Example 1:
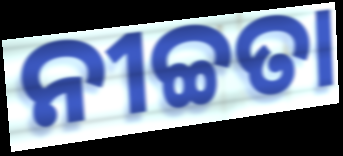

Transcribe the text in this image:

ନୀଚ୍ଚତା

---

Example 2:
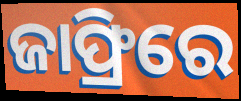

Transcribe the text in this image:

ଜାଫ୍ରିରେ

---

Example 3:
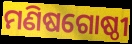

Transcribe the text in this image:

ମଣିଷଗୋଷ୍ଠୀ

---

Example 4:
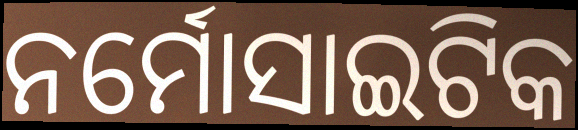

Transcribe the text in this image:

ନର୍ମୋସାଇଟିକ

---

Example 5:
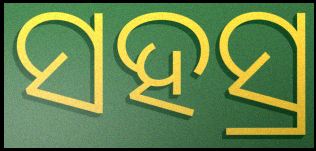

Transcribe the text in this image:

ସହସ୍ର